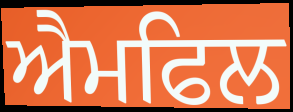
ਐਮਫਿਲ